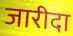
जारीदा